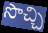
సొచ్చి